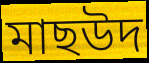
মাছউদ